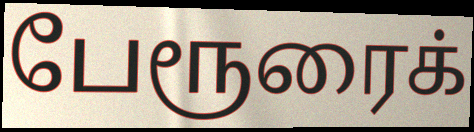
பேரூரைக்